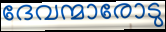
ദേവന്മാരോടു